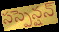
సస్పెన్షన్